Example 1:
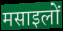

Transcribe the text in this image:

मसाइलों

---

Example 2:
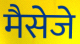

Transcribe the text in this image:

मैसेजे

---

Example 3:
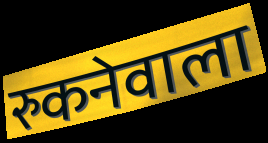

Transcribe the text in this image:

रुकनेवाला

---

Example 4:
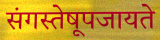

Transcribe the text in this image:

संगस्तेषूपजायते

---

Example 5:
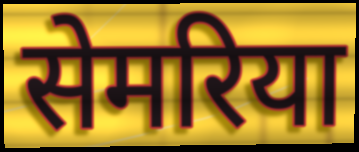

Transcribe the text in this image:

सेमरिया